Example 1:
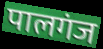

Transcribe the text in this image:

पालगंज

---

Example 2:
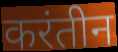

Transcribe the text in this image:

करंतीन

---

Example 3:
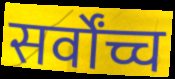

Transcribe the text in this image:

सर्वोंच्च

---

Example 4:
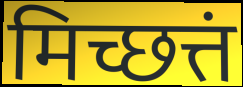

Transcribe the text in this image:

मिच्छत्तं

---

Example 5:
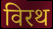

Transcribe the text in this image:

विरथ